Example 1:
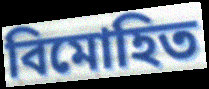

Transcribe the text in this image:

বিমোহিত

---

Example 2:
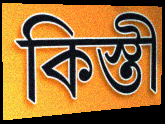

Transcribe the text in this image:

কিস্তী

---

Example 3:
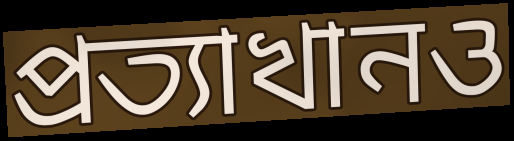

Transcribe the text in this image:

প্রত্যাখানও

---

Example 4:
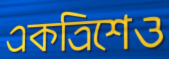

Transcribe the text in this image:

একত্রিশেও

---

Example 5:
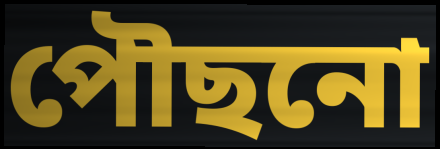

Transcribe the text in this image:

পৌছনো